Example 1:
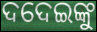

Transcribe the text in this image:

ଦଦେଇଙ୍କୁ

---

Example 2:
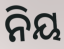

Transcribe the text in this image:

ନିୟ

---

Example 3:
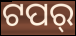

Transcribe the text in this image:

ଟପର୍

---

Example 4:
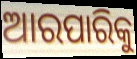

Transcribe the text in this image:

ଆରପାରିକୁ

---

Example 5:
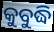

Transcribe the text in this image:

କୁବୁଦ୍ଧି